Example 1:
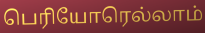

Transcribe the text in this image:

பெரியோரெல்லாம்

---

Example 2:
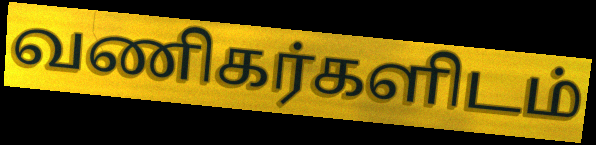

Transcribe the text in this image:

வணிகர்களிடம்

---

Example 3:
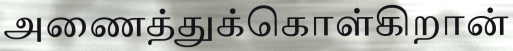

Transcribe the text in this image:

அணைத்துக்கொள்கிறான்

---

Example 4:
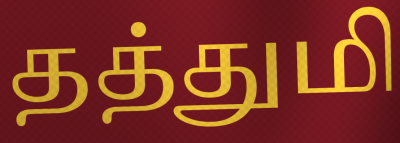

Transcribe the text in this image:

தத்துமி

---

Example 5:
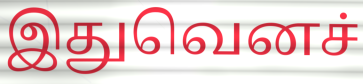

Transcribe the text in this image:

இதுவெனச்